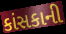
કાંસકાની